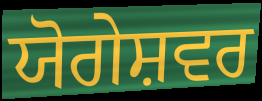
ਯੋਗੇਸ਼ਵਰ